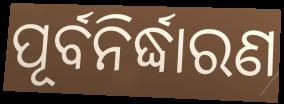
ପୂର୍ବନିର୍ଦ୍ଧାରଣ